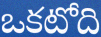
ఒకటోది